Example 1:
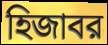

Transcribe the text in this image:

হিজাবর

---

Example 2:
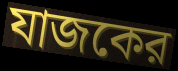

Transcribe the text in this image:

যাজকের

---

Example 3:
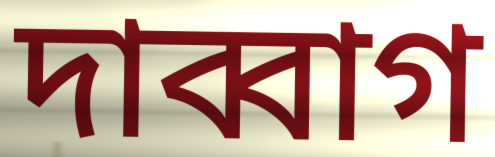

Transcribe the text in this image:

দাব্বাগ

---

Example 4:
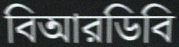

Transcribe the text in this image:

বিআরডিবি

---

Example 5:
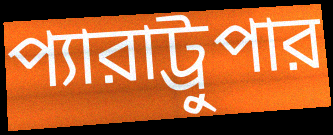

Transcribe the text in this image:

প্যারাট্রুপার